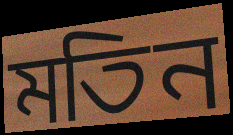
মতিন